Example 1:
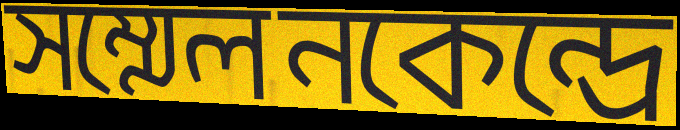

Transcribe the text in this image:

সম্মেলনকেন্দ্রে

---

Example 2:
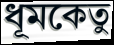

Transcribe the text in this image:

ধূমকেতু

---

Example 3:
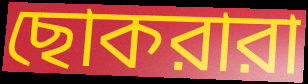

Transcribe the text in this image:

ছোকরারা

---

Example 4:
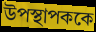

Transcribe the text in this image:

উপস্থাপককে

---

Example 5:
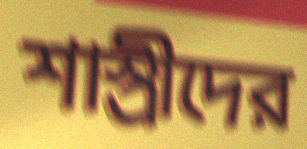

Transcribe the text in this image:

শাস্ত্রীদের